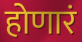
होणारं